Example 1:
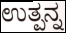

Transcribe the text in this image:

ಉತ್ಪನ್ನ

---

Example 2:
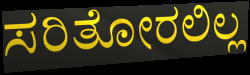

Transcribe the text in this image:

ಸರಿತೋರಲಿಲ್ಲ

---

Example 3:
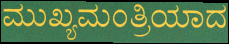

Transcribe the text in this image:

ಮುಖ್ಯಮಂತ್ರಿಯಾದ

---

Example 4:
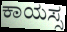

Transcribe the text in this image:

ಕಾಯಸ್ಸ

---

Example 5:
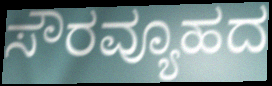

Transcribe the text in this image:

ಸೌರವ್ಯೂಹದ